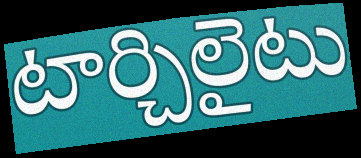
టార్చిలైటు